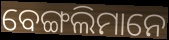
ବେଙ୍ଗଲିମାନେ